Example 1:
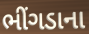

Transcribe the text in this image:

ભીંગડાના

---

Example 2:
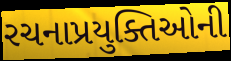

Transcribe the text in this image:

રચનાપ્રયુક્તિઓની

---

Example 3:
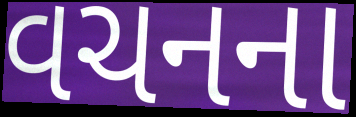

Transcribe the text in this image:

વચનના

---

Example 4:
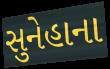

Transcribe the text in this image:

સુનેહાના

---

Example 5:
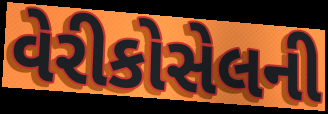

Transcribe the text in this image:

વેરીકોસેલની